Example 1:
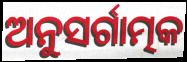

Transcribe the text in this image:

ଅନୁସର୍ଗାତ୍ମକ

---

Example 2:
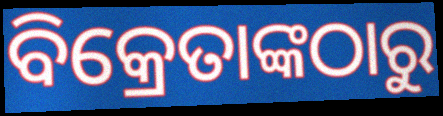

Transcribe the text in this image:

ବିକ୍ରେତାଙ୍କଠାରୁ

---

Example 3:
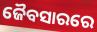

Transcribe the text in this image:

ଜୈବସାରରେ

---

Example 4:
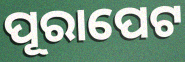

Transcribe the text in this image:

ପୂରାପେଟ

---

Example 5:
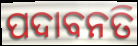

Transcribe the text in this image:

ପଦାବନତି